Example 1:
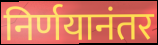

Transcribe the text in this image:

निर्णयानंतर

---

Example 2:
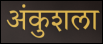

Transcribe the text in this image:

अंकुशला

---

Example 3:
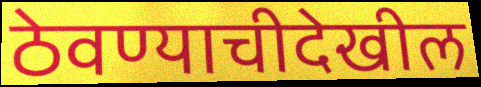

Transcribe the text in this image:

ठेवण्याचीदेखील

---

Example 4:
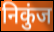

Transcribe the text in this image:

निकुंज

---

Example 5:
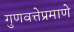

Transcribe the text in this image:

गुणवत्तेप्रमाणे